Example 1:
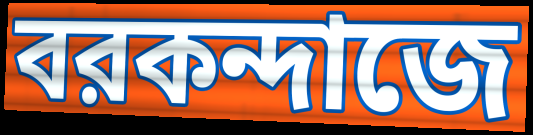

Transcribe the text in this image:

বরকন্দাজে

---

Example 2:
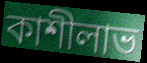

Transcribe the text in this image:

কাশীলাভ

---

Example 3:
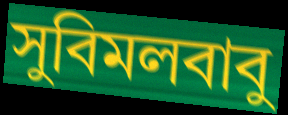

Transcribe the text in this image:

সুবিমলবাবু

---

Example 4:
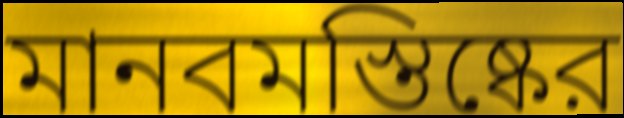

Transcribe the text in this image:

মানবমস্তিষ্কের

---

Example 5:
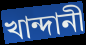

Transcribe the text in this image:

খান্দানী